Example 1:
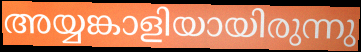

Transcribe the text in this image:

അയ്യങ്കാളിയായിരുന്നു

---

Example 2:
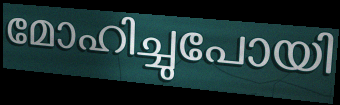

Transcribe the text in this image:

മോഹിച്ചുപോയി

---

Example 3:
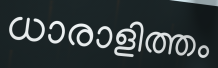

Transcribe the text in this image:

ധാരാളിത്തം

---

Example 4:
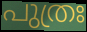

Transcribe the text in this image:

പുത്രഃ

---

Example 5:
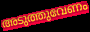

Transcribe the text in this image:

അടുത്തുവേണം